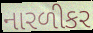
નારળીકર